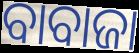
ବାବାଜା